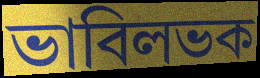
ভাবিলভক